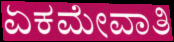
ಏಕಮೇವಾತಿ